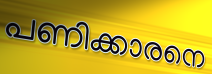
പണിക്കാരനെ